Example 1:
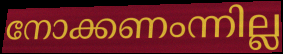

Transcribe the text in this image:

നോക്കണംന്നില്ല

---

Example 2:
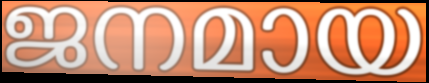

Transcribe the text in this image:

ജനമായ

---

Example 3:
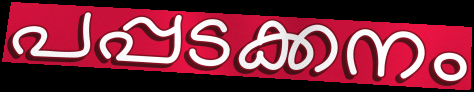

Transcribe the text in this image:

പപ്പടക്കനം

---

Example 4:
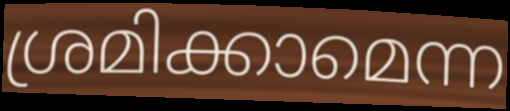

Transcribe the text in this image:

ശ്രമിക്കാമെന്ന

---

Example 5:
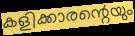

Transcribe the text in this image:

കളിക്കാരന്റെയും